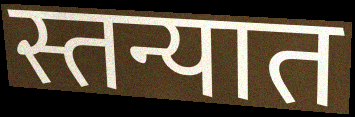
स्तन्यात